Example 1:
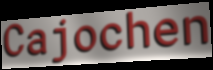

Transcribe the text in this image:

Cajochen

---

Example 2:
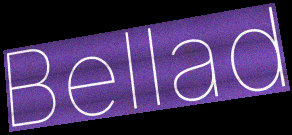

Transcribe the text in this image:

Bellad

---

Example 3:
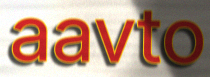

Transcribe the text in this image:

aavto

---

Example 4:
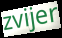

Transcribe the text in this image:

zvijer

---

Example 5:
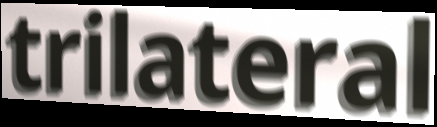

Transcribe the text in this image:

trilateral